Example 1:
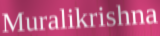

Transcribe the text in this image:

Muralikrishna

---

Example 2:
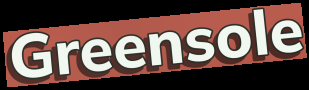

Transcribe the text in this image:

Greensole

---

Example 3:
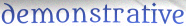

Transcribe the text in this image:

demonstrative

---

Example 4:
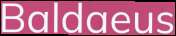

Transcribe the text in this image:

Baldaeus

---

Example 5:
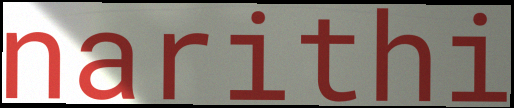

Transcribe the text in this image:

narithi